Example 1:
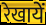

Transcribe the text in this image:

रेखायें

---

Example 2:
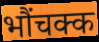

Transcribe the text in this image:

भौंचक्क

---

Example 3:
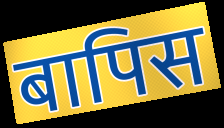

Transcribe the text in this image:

बापिस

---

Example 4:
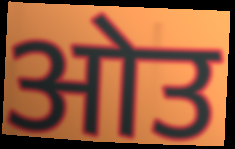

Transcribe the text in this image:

ओउ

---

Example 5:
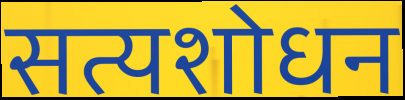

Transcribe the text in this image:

सत्यशोधन